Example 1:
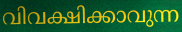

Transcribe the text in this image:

വിവക്ഷിക്കാവുന്ന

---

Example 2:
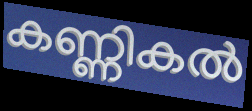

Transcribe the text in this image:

കണ്ണികൽ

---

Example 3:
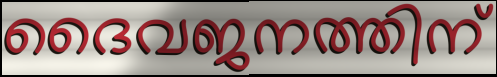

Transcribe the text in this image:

ദൈവജനത്തിന്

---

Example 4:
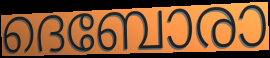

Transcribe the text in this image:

ദെബോരാ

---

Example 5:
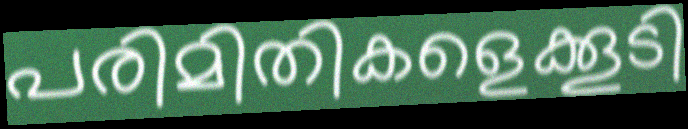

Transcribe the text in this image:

പരിമിതികളെക്കൂടി